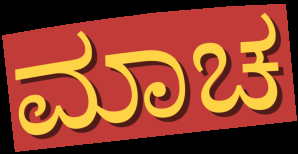
ಮಾಚ